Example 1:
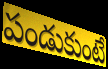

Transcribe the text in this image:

పండుకుంటే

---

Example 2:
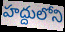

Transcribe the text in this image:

హద్దులోని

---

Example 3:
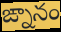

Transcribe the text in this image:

ఙ్నానం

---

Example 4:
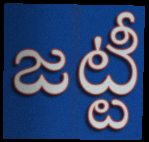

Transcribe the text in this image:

జట్టీ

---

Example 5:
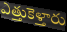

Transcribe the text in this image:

ఎత్తుకెళ్తారు